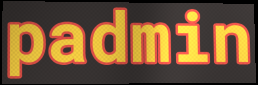
padmin